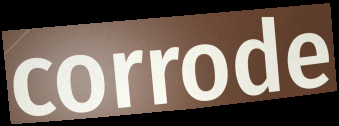
corrode